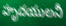
హృదయులనీ